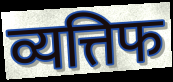
व्यत्तिफ